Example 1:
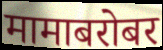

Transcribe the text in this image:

मामाबरोबर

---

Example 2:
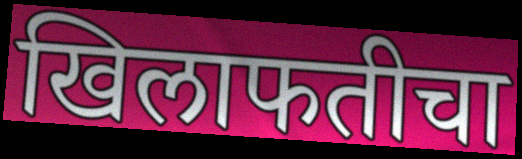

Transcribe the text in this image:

खिलाफतीचा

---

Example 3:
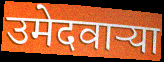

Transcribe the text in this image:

उमेदवाऱ्या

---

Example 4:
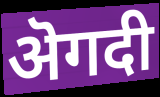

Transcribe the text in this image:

ऄगदी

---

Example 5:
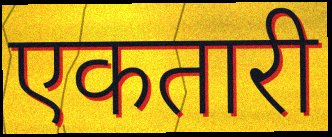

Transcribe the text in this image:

एकतारी